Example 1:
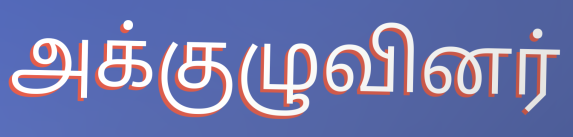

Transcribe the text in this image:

அக்குழுவினர்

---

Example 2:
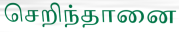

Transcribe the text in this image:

செறிந்தானை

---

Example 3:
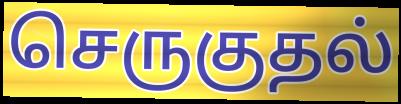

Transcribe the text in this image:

செருகுதல்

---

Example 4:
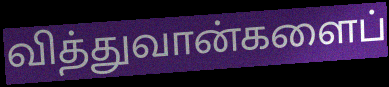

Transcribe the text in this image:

வித்துவான்களைப்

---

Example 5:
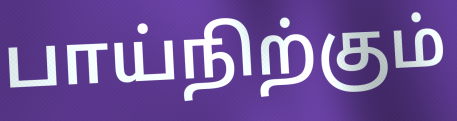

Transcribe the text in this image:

பாய்நிற்கும்